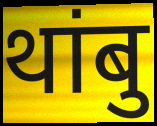
थांबु